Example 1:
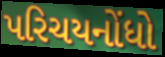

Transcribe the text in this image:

પરિચયનોંધો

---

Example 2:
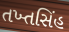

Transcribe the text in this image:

તખ્તસિંહ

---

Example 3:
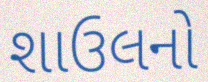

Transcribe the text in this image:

શાઉલનો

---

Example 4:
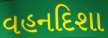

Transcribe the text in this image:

વહનદિશા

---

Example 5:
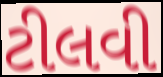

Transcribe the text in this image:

ટીલવી